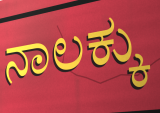
ನಾಲಕ್ಕು